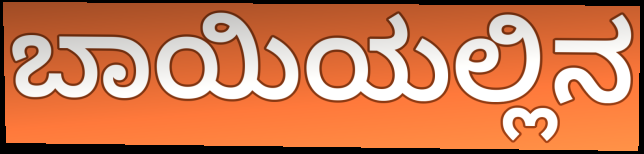
ಬಾಯಿಯಲ್ಲಿನ